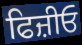
ਫਿਜ਼ੀਓ